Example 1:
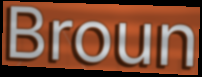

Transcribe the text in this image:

Broun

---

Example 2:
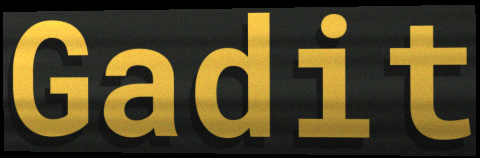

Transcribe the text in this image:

Gadit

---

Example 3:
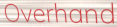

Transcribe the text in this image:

Overhand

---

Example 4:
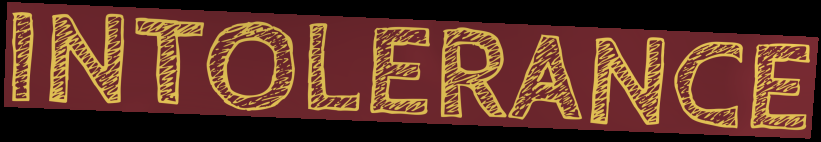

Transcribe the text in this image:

INTOLERANCE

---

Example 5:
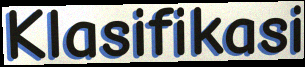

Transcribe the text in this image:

Klasifikasi